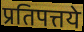
प्रतिपत्तये